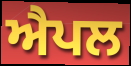
ਐਪਲ